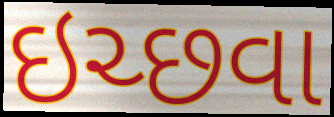
ઇચ્છવા